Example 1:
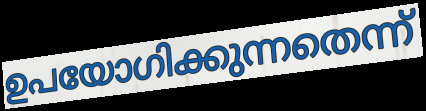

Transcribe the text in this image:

ഉപയോഗിക്കുന്നതെന്ന്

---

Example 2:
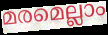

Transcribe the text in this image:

മരമെല്ലാം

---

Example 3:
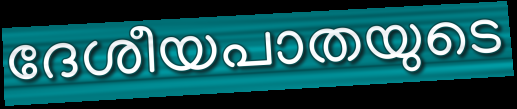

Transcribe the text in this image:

ദേശീയപാതയുടെ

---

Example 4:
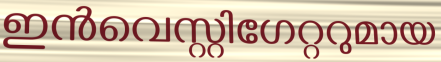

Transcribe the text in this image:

ഇൻവെസ്റ്റിഗേറ്ററുമായ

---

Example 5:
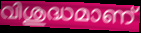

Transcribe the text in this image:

വിശുദ്ധമാണ്